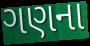
ગણના